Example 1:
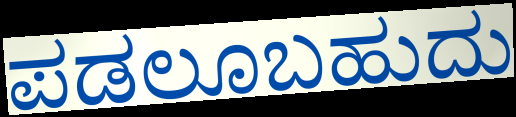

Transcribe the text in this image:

ಪಡಲೂಬಹುದು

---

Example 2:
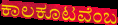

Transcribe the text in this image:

ಕಾಲಕೂಟವೆಂಬ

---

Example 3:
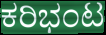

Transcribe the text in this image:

ಕರಿಭಂಟ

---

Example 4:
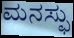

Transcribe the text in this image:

ಮನಸ್ಫು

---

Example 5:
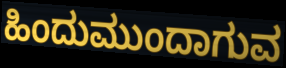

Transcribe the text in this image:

ಹಿಂದುಮುಂದಾಗುವ